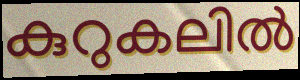
കുറുകലിൽ